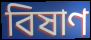
বিষাণ